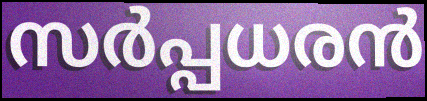
സർപ്പധരൻ